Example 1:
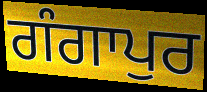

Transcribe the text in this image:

ਗੰਗਾਪੁਰ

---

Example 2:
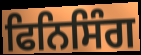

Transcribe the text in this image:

ਫਿਨਿਸਿੰਗ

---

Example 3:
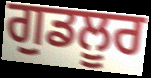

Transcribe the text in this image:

ਗੁਡਲੂਰ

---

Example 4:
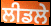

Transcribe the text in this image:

ਲੀਡਲੇ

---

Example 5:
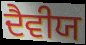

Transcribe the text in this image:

ਦੈਵੀਯ